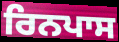
ਰਿਨਪਾਸ